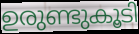
ഉരുണ്ടുകൂടി